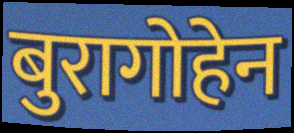
बुरागोहेन